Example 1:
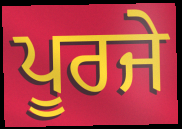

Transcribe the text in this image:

ਪੂਰਜੇ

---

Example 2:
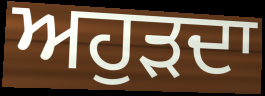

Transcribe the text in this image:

ਅਹੁੜਦਾ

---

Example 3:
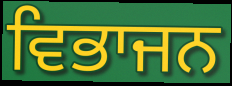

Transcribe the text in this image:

ਵਿਭਾਜਨ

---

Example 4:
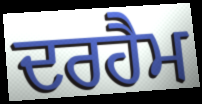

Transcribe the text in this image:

ਦਰਹੈਮ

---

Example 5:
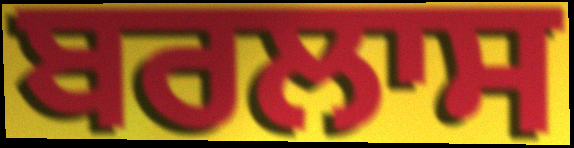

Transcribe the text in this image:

ਬਰਲਾਸ